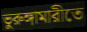
ভুরুঙ্গামারীতে